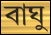
বাঘু